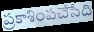
ప్రకాశింపచేసేది